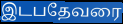
இடபதேவரை